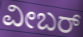
ವೀಬರ್